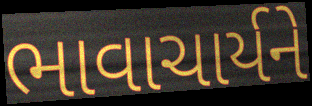
ભાવાચાર્યને